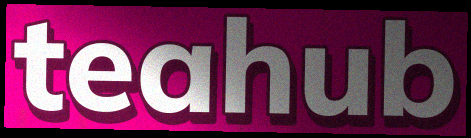
teahub